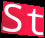
St